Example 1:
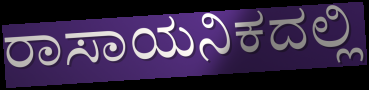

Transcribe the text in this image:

ರಾಸಾಯನಿಕದಲ್ಲಿ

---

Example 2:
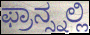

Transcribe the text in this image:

ಫ್ರಾನ್ಸ್ನಲ್ಲಿ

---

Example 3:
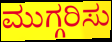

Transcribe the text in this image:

ಮುಗ್ಗರಿಸು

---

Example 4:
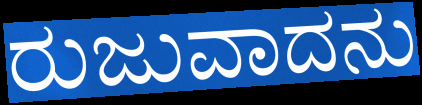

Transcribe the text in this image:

ರುಜುವಾದನು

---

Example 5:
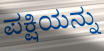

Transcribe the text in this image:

ಪಕ್ಷಿಯನ್ನು